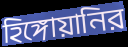
হিঙ্গোয়ানির